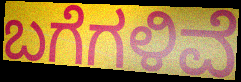
ಬಗೆಗಳಿವೆ